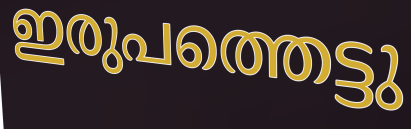
ഇരുപത്തെട്ടു